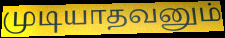
முடியாதவனும்